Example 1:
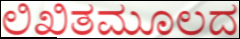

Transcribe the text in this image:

ಲಿಖಿತಮೂಲದ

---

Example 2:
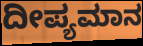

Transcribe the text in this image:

ದೀಪ್ಯಮಾನ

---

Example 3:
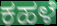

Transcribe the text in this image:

ಕಹಳೆ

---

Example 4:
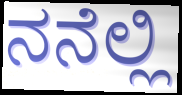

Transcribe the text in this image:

ನನೆಲ್ಲಿ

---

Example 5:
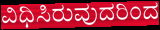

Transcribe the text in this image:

ವಿಧಿಸಿರುವುದರಿಂದ